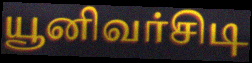
யூனிவர்சிடி